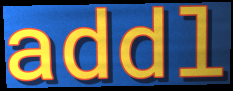
addl